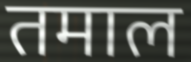
तमाल